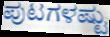
ಪುಟಗಳಷ್ಟು